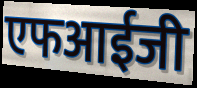
एफआईजी